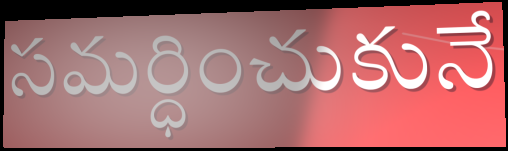
సమర్ధించుకునే